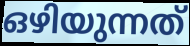
ഒഴിയുന്നത്